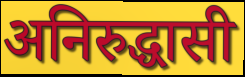
अनिरुद्धासी